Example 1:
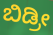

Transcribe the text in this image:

ಬಿಡ್ರೀ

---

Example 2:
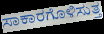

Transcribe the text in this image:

ಸಾಕಾರಗೊಳಿಸುತ್ತ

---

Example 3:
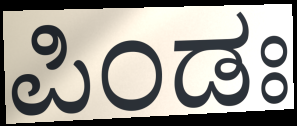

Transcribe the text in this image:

ಪಿಂಡಃ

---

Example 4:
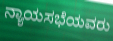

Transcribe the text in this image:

ನ್ಯಾಯಸಭೆಯವರು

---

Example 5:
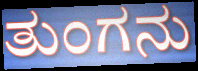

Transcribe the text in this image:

ತುಂಗನು